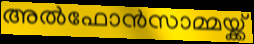
അൽഫോൻസാമ്മയ്ക്ക്